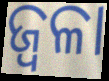
ଜ୍ଵଳା